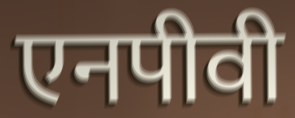
एनपीवी